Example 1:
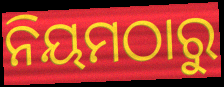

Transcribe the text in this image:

ନିୟମଠାରୁ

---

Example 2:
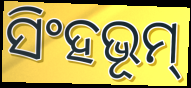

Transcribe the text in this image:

ସିଂହଭୂମ୍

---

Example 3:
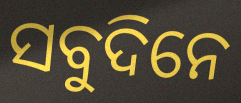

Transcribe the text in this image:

ସବୁଦିନେ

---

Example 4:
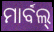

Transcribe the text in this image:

ମାର୍ବଲ୍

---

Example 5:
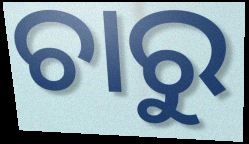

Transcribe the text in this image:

ଚାରୁ